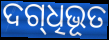
ଦଗ୍‌ଧିଭୂତ